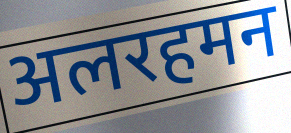
अलरहमन